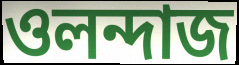
ওলন্দাজ